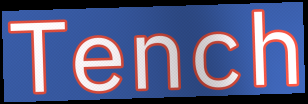
Tench